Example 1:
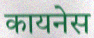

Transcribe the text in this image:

कायनेस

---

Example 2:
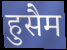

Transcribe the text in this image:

हुसैम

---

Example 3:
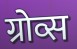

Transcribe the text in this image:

ग्रोव्स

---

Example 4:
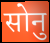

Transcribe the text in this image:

सोनु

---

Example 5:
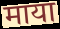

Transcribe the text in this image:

माया